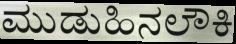
ಮುಡುಹಿನಲೌಕಿ